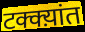
टक्क्य़ांत